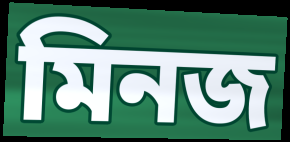
মিনজ